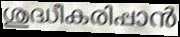
ശുദ്ധീകരിപ്പാൻ